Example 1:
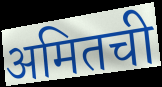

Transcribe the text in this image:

अमितची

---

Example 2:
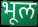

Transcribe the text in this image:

भूल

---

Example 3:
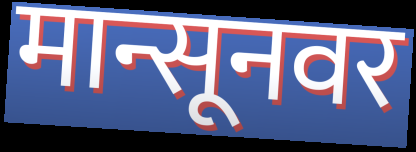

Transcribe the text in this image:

मान्सूनवर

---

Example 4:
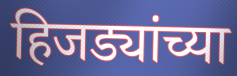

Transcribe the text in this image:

हिजड्यांच्या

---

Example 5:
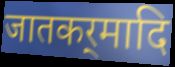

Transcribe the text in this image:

जातकर्मादि